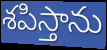
శపిస్తాను